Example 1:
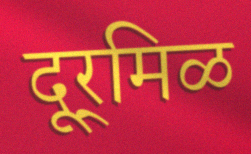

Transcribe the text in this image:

दूर्मिळ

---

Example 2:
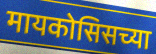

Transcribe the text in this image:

मायकोसिसच्या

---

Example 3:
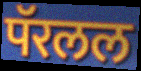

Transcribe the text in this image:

पॅरलल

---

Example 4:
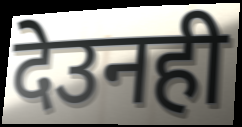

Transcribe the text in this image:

देउनही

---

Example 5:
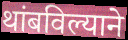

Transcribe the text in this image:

थांबविल्याने